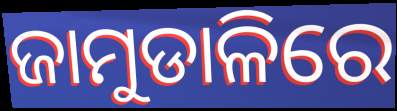
ଜାମୁଡାଳିରେ